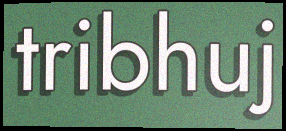
tribhuj